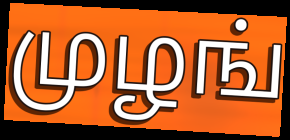
முழங்